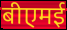
बीएमई